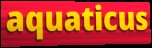
aquaticus